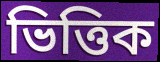
ভিত্তিক